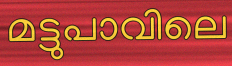
മട്ടുപാവിലെ